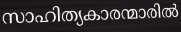
സാഹിത്യകാരന്മാരിൽ